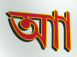
আা